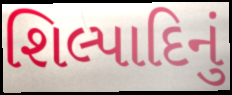
શિલ્પાદિનું